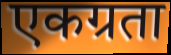
एकग्रता